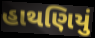
હાથણિયું